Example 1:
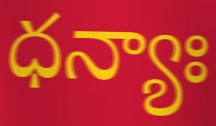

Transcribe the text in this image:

ధన్యాః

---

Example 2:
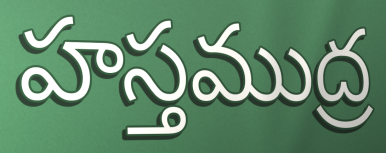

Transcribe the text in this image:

హస్తముద్ర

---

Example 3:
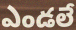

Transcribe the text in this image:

ఎండలే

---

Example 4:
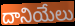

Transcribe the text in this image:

దానియేలు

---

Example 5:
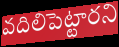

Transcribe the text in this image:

వదిలిపెట్టారని